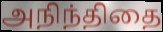
அநிந்திதை